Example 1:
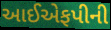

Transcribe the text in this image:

આઈએફપીની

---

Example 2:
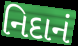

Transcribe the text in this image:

નિદાનં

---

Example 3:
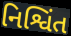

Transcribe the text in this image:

નિશ્વિંત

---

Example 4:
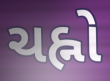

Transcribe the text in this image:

ચહ્નો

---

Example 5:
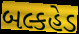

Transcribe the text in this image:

બલ્કહેડ